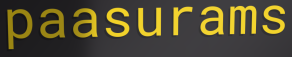
paasurams